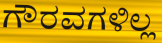
ಗೌರವಗಳಿಲ್ಲ